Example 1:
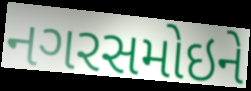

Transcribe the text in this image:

નગરસમોઇને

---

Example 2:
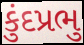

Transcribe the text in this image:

કુંદપ્રભુ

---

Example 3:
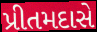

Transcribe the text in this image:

પ્રીતમદાસે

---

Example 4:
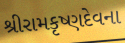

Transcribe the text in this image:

શ્રીરામકૃષ્ણદેવના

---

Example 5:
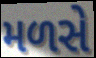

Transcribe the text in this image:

મળસે